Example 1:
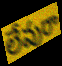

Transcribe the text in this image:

లేవురా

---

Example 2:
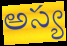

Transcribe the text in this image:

అస్య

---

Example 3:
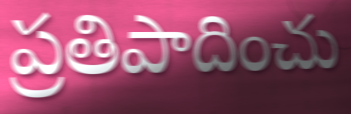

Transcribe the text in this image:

ప్రతిపాదించు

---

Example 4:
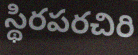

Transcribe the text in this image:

స్థిరపరచిరి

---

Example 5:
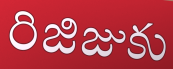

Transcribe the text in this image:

రిజిజుకు